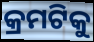
କ୍ରମଟିକୁ